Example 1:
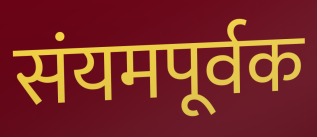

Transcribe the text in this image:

संयमपूर्वक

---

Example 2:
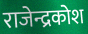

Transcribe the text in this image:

राजेन्द्रकोश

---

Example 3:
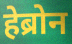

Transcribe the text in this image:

हेब्रोन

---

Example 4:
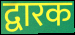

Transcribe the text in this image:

द्वारक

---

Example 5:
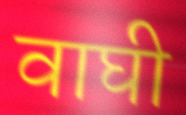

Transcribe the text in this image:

वाघी